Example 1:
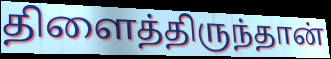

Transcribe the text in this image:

திளைத்திருந்தான்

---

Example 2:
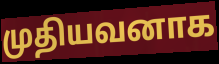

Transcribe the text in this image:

முதியவனாக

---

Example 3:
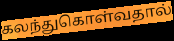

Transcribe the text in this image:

கலந்துகொள்வதால்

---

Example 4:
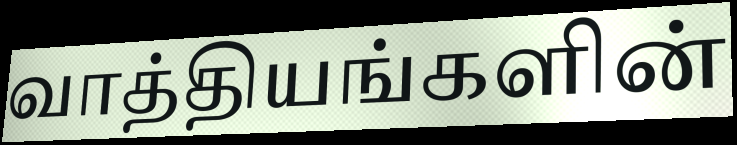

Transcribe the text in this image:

வாத்தியங்களின்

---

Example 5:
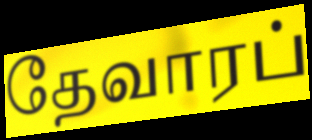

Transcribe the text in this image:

தேவாரப்